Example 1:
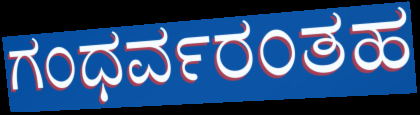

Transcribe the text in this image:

ಗಂಧರ್ವರಂತಹ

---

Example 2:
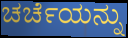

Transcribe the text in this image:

ಚರ್ಚೆಯನ್ನು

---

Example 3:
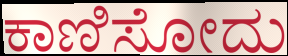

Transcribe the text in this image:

ಕಾಣಿಸೋದು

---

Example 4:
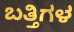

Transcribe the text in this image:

ಬತ್ತಿಗಳ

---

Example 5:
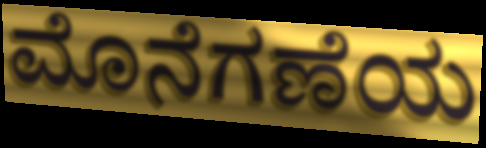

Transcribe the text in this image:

ಮೊನೆಗಣೆಯ